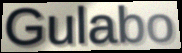
Gulabo